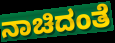
ನಾಚಿದಂತೆ